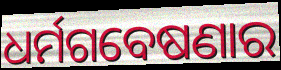
ଧର୍ମଗବେଷଣାର